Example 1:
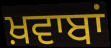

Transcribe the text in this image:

ਖ਼ਵਾਬਾਂ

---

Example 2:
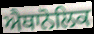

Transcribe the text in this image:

ਐਥਾਨੋਲਿਕ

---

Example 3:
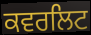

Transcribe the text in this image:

ਕਵਰਲਿਟ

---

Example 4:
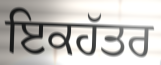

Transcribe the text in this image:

ਇਕਹੱਤਰ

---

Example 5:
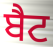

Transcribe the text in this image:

ਬੈਟ